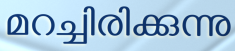
മറച്ചിരിക്കുന്നു